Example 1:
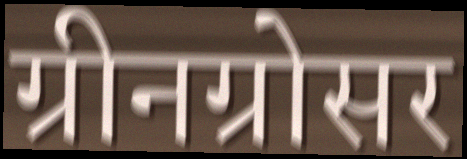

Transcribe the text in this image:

ग्रीनग्रोसर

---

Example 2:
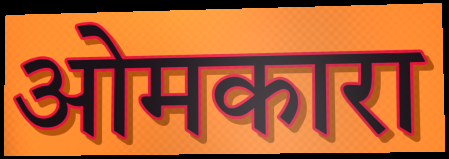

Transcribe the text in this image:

ओमकारा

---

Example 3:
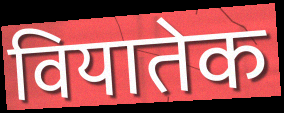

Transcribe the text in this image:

वियातेक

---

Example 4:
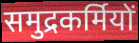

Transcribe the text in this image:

समुद्रकर्मियों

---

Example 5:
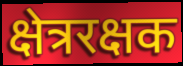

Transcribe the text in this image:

क्षेत्ररक्षक